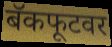
बॅकफूटवर